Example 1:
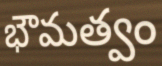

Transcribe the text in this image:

భౌమత్వం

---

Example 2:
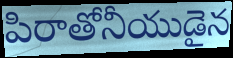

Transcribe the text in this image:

పిరాతోనీయుడైన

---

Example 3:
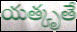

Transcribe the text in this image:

యత్కృతే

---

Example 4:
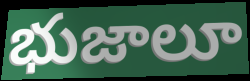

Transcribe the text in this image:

భుజాలూ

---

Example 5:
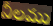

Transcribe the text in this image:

నీలము